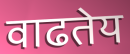
वाढतेय